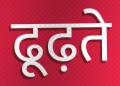
ढूढ़ते